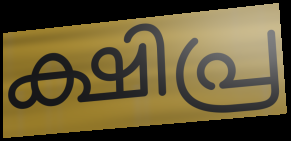
ക്ഷിപ്ര